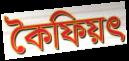
কৈফিয়ৎ